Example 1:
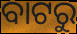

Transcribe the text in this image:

ବାଟରୁ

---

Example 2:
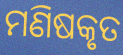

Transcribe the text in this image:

ମଣିଷକୃତ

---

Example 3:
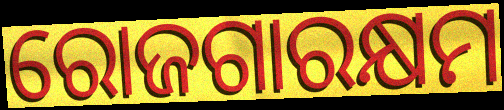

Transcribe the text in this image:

ରୋଜଗାରକ୍ଷମ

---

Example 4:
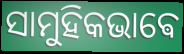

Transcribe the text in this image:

ସାମୁହିକଭାଵେ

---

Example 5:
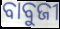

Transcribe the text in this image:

ବାବୁଜୀ